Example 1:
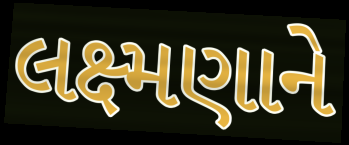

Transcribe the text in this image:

લક્ષ્મણાને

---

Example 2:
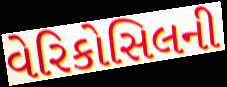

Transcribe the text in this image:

વેરિકોસિલની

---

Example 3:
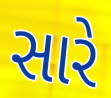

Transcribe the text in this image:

સારે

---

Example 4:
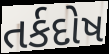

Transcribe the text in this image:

તર્કદોષ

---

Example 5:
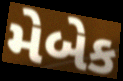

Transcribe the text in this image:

મેબેક